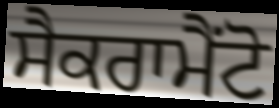
ਸੈਕਰਾਮੈਂਟੋ